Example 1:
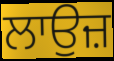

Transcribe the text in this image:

ਲਾਉਜ਼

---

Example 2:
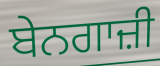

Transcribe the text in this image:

ਬੇਨਗਾਜ਼ੀ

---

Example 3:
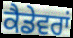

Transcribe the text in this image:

ਕੈਡੇਵਰਾਂ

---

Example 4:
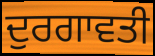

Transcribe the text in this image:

ਦੁਰਗਾਵਤੀ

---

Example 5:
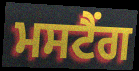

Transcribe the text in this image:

ਮਸਟੈਂਗ